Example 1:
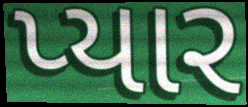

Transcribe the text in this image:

પ્યાર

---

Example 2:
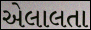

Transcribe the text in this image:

એલાલતા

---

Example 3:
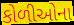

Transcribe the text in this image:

કોળીઓના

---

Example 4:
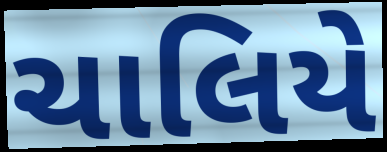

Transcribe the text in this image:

ચાલિયે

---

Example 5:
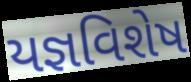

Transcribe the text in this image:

યજ્ઞવિશેષ